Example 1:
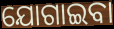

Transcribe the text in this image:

ଯୋଗାଇବା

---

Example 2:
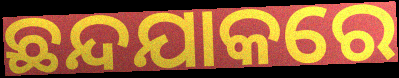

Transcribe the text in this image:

ଛନ୍ଦଯାକରେ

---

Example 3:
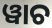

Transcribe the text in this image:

ୱାଚ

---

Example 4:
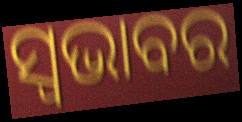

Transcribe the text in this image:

ସ୍ଵଭାବର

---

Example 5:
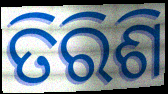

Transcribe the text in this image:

ତିରିଶି